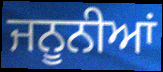
ਜਨੂਨੀਆਂ